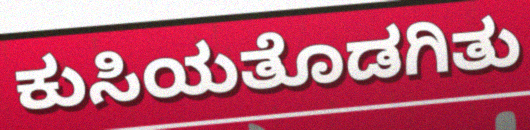
ಕುಸಿಯತೊಡಗಿತು